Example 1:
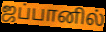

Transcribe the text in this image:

ஜப்பானில்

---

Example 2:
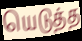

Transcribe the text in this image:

யெடுத்த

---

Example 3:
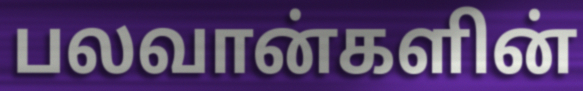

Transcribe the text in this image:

பலவான்களின்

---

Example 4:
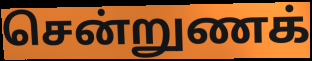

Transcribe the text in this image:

சென்றுணக்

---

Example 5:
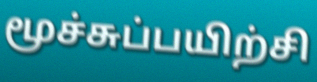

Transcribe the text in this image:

மூச்சுப்பயிற்சி